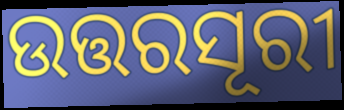
ଉତ୍ତରସୂରୀ